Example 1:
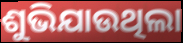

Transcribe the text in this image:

ଶୁଭିଯାଉଥିଲା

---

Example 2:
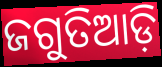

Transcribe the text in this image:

ଜଗୁତିଆଡ଼ି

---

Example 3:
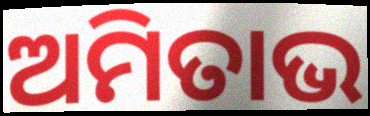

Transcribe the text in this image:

ଅମିତାଭ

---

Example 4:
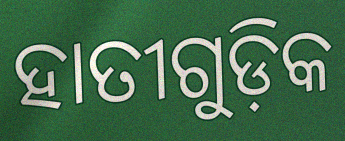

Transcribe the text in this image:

ହାତୀଗୁଡ଼ିକ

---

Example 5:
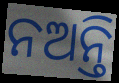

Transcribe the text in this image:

ନଅନ୍ତି